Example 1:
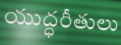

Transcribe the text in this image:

యుద్ధరీతులు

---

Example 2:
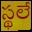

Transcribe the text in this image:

స్థలే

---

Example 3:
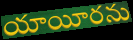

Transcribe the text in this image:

యాయీరను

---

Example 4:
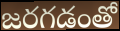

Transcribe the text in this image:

జరగడంతో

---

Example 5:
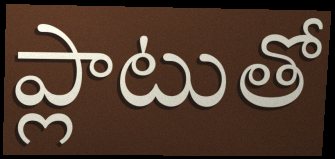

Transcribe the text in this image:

ప్లాటుతో